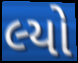
લ્યો